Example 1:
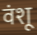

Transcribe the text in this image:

वंशू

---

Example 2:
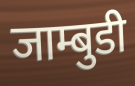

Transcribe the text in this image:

जाम्बुडी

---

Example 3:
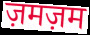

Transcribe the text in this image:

ज़मज़म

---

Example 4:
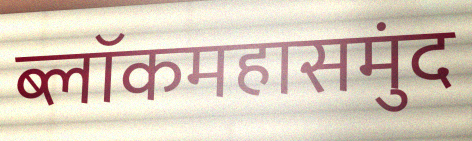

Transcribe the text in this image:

ब्लॉकमहासमुंद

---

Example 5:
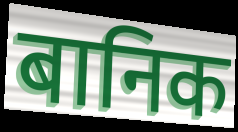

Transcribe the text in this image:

बानिक